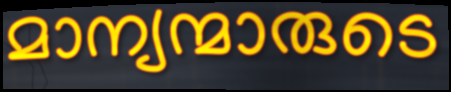
മാന്യന്മാരുടെ